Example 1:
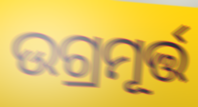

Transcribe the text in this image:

ଉଗ୍ରମୂର୍ତ୍ତ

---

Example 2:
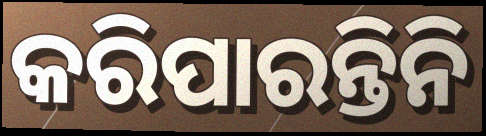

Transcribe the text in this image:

କରିପାରନ୍ତିନି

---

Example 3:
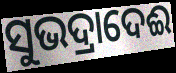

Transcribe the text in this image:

ସୁଭଦ୍ରାଦେଈ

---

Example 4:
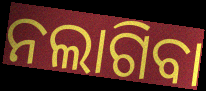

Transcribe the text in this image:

ନଲାଗିବା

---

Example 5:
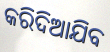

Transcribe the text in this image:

କରିଦିଆଯିବ